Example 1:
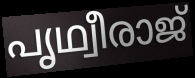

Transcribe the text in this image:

പൃഥ്വീരാജ്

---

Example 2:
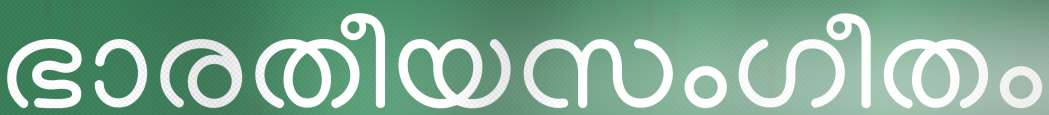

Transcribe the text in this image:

ഭാരതീയസംഗീതം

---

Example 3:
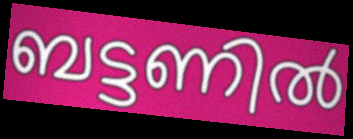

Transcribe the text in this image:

ബട്ടണിൽ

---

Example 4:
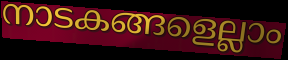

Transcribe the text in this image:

നാടകങ്ങളെല്ലാം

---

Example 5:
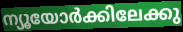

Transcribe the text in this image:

ന്യൂയോർക്കിലേക്കു